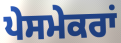
ਪੇਸਮੇਕਰਾਂ